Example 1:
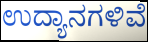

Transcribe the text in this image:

ಉದ್ಯಾನಗಳಿವೆ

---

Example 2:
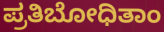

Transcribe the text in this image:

ಪ್ರತಿಬೋಧಿತಾಂ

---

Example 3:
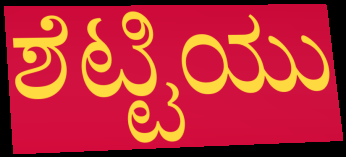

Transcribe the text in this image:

ಶೆಟ್ಟಿಯು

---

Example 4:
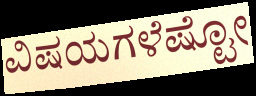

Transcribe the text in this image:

ವಿಷಯಗಳೆಷ್ಟೋ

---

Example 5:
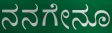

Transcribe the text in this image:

ನನಗೇನೂ